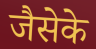
जैसेके